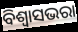
ବିଶ୍ୱାସଭରା